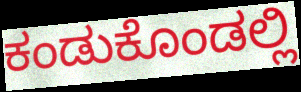
ಕಂಡುಕೊಂಡಲ್ಲಿ